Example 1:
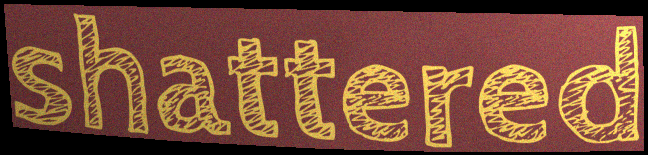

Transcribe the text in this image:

shattered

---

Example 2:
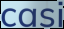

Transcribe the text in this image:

casi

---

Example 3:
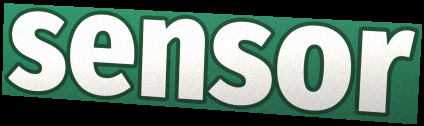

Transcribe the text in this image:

sensor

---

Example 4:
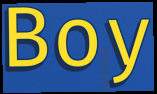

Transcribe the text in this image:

Boy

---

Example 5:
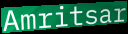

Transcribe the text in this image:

Amritsar